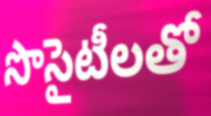
సొసైటీలతో